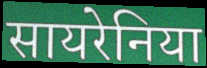
सायरेनिया